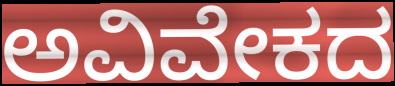
ಅವಿವೇಕದ